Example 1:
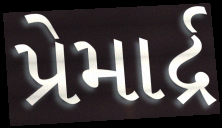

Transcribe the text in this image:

પ્રેમાર્દ્ર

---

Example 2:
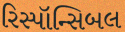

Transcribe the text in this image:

રિસ્પૉન્સિબલ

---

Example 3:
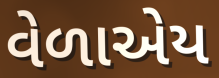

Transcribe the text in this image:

વેળાએય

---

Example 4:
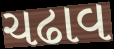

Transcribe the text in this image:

ચઢાવ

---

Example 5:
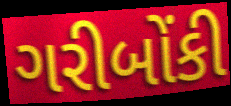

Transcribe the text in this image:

ગરીબોંકી